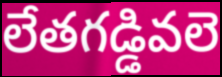
లేతగడ్డివలె